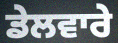
ਡੇਲਵਾਰੇ